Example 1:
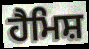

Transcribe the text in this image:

ਹੈਮਿਸ਼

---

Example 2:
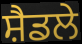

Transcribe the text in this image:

ਸ਼ੈਡਲੇ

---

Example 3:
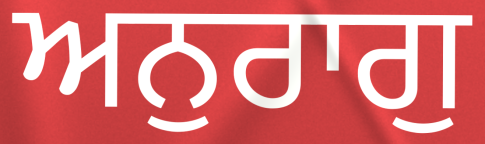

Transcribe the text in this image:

ਅਨੁਰਾਗੁ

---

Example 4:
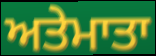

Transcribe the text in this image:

ਅਤੇਮਾਤਾ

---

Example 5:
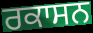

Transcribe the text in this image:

ਰਕਾਸਨ